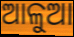
ଆଳୁଆ